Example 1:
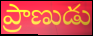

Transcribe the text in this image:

ప్రాణుడు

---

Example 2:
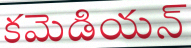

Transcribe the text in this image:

కమెడియన్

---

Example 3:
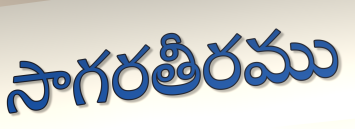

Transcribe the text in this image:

సాగరతీరము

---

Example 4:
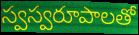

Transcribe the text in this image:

స్వస్వరూపాలతో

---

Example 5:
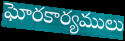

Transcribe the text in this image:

ఘోరకార్యములు